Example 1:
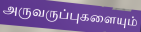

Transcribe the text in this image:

அருவருப்புகளையும்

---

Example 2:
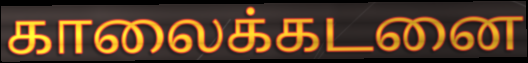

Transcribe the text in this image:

காலைக்கடனை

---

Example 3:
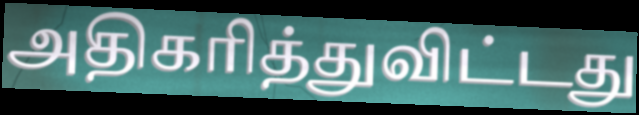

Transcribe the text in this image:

அதிகரித்துவிட்டது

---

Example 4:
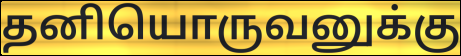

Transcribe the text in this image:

தனியொருவனுக்கு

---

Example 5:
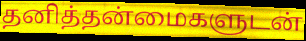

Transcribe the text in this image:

தனித்தன்மைகளுடன்